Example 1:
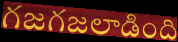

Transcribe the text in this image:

గజగజలాడింది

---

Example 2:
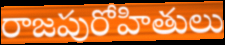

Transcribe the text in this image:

రాజపురోహితులు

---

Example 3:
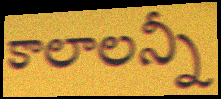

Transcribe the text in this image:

కాలాలన్నీ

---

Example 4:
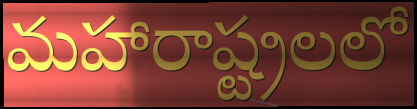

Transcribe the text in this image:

మహారాష్ట్రలలో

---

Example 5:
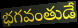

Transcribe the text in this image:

భగవంతుడే